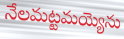
నేలమట్టమయ్యెను